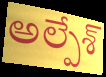
అల్పేశ్